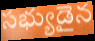
సభ్యుడైన